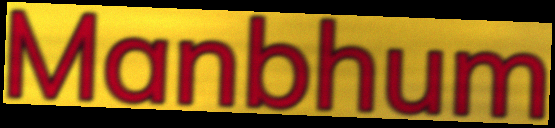
Manbhum